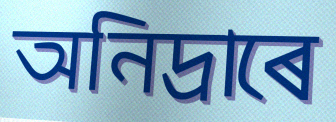
অনিদ্ৰাৰে